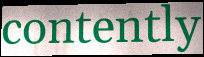
contently